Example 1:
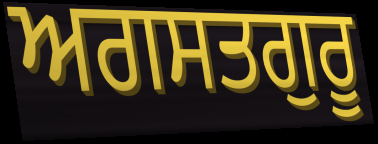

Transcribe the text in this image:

ਅਗਸਤਗੁਰੂ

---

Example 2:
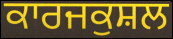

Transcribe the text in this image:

ਕਾਰਜਕੁਸ਼ਲ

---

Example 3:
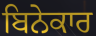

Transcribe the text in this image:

ਬਿਨੇਕਾਰ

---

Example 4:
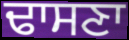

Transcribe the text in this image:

ਢਾਸਣਾ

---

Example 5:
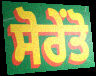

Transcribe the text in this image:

ਸੋਰੇਂਤੋ